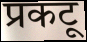
प्रकटू